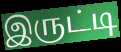
இருட்டி